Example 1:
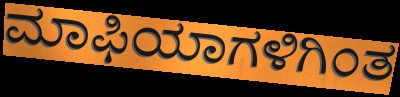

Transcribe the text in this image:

ಮಾಫಿಯಾಗಳಿಗಿಂತ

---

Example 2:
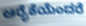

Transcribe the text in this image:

ಆರೈಕೆಯೆಂದರೆ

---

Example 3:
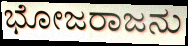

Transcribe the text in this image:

ಭೋಜರಾಜನು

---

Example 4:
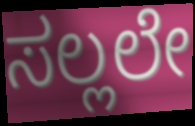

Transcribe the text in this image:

ಸಲ್ಲಲೇ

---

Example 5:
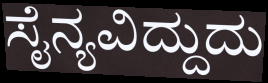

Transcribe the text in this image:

ಸೈನ್ಯವಿದ್ದುದು